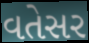
વતેસર